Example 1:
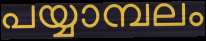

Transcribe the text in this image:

പയ്യാമ്പലം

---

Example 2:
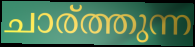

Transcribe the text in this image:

ചാര്ത്തുന്ന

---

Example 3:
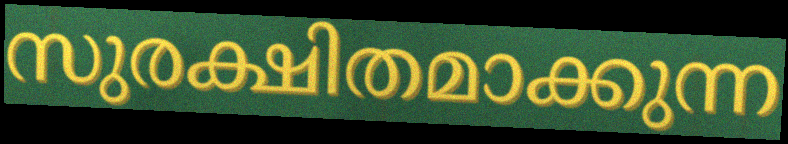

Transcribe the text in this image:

സുരക്ഷിതമാക്കുന്ന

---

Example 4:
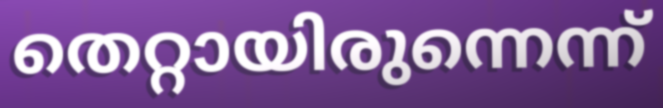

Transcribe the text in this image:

തെറ്റായിരുന്നെന്ന്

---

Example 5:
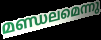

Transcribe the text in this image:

മണ്ഡലമെന്നു